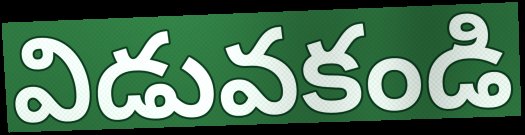
విడువకండి